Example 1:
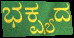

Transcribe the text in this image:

ಭಕ್ಷ್ಯದ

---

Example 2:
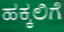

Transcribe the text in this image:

ಹಕ್ಕಲಿಗೆ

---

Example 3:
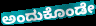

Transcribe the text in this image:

ಅಂದುಕೊಂಡೇ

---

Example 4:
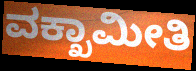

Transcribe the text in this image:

ವಕ್ಖಾಮೀತಿ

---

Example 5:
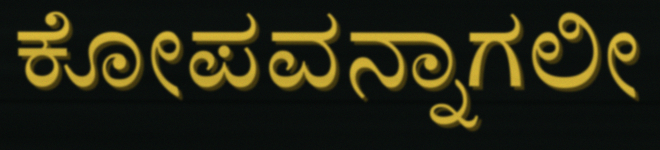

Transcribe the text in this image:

ಕೋಪವನ್ನಾಗಲೀ